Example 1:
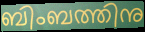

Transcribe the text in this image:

ബിംബത്തിനു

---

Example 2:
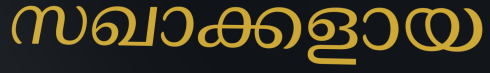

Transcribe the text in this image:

സഖാക്കളായ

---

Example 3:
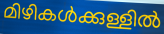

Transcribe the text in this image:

മിഴികൾക്കുള്ളിൽ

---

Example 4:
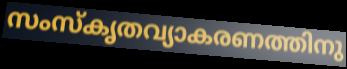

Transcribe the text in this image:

സംസ്കൃതവ്യാകരണത്തിനു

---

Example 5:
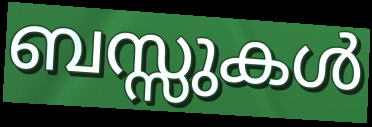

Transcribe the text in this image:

ബസ്സുകൾ